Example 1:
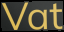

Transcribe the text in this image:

Vat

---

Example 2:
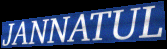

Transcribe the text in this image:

JANNATUL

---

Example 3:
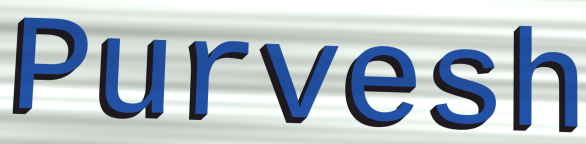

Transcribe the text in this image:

Purvesh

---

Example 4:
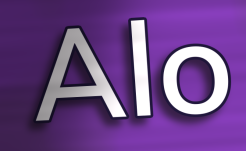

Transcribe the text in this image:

Alo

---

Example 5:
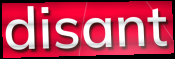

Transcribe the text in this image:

disant